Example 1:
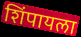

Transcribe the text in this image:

शिंपायला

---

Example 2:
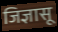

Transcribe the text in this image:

जिज्ञासू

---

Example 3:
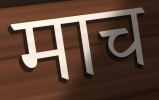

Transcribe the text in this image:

माच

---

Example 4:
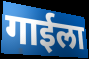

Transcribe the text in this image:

गाईला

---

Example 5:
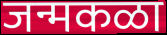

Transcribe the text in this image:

जन्मकळा